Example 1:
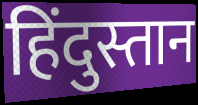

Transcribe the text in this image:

हिंदुस्‍तान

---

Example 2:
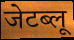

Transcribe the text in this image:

जेटब्लू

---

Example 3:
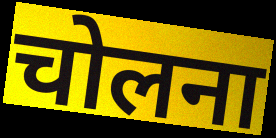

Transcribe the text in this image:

चोलना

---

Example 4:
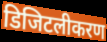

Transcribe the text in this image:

डिजिटलीकरण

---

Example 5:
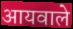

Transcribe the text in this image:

आयवाले